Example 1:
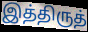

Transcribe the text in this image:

இத்திருத்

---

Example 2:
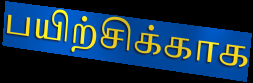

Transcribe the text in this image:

பயிற்சிக்காக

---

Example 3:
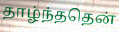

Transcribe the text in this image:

தாழ்ந்ததென்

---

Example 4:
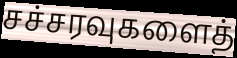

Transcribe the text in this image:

சச்சரவுகளைத்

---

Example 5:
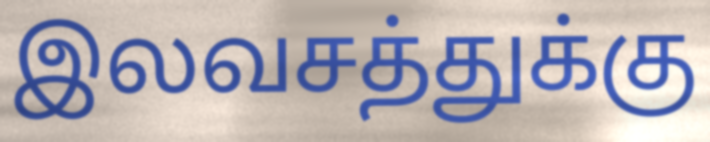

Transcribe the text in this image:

இலவசத்துக்கு